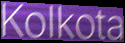
Kolkota